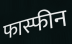
फास्फीन